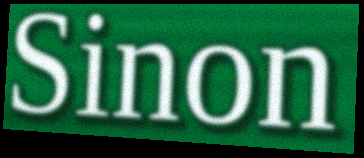
Sinon